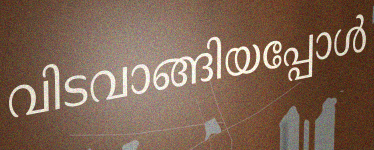
വിടവാങ്ങിയപ്പോൾ